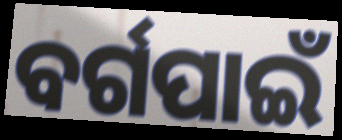
ବର୍ଗପାଇଁ